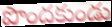
పొందకుండు